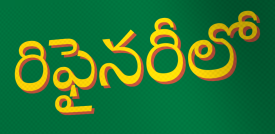
రిఫైనరీలో